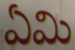
ఏమి